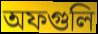
অফগুলি